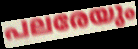
പലരേയും